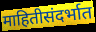
माहितीसंदर्भात